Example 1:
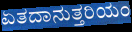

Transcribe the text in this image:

ಏತದಾನುತ್ತರಿಯಂ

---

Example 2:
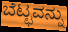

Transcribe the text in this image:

ಬೆಟ್ಟವನ್ನು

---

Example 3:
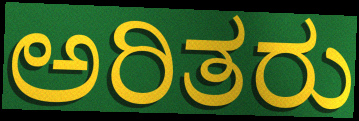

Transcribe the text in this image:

ಅರಿತರು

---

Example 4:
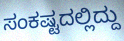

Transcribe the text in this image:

ಸಂಕಷ್ಟದಲ್ಲಿದ್ದು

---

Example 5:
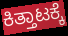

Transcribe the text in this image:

ಕಿತ್ತಾಟಕ್ಕೆ